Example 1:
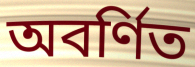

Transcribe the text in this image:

অবর্ণিত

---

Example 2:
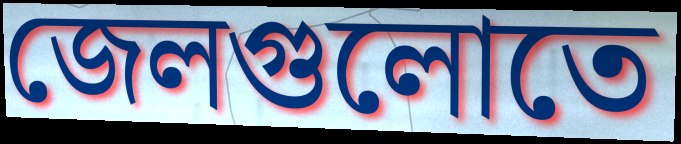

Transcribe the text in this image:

জেলগুলোতে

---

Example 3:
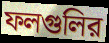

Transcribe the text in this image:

ফলগুলির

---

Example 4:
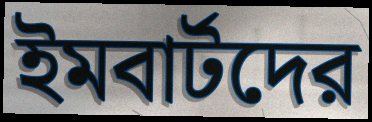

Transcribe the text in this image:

ইমবার্টদের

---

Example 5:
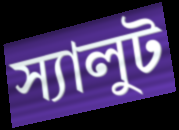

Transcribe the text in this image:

স্যালুট